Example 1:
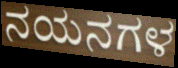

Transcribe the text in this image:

ನಯನಗಳ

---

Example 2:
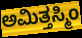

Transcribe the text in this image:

ಅಮಿತ್ತಸ್ಮಿಂ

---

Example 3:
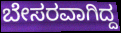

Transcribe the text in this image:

ಬೇಸರವಾಗಿದ್ದ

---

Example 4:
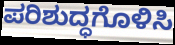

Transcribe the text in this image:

ಪರಿಶುದ್ಧಗೊಳಿಸಿ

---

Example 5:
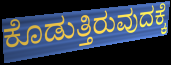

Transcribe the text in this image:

ಕೊಡುತ್ತಿರುವುದಕ್ಕೆ